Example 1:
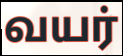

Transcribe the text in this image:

வயர்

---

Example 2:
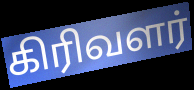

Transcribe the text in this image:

கிரிவளர்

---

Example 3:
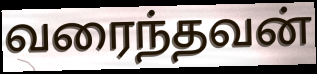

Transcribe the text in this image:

வரைந்தவன்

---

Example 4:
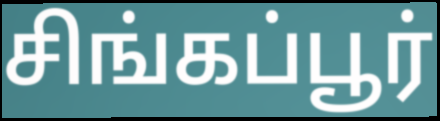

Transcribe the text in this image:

சிங்கப்பூர்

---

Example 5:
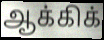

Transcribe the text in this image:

ஆக்கிக்